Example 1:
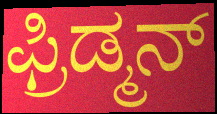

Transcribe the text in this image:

ಫ್ರಿಡ್ಮನ್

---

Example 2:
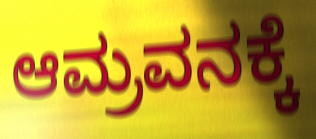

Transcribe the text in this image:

ಆಮ್ರವನಕ್ಕೆ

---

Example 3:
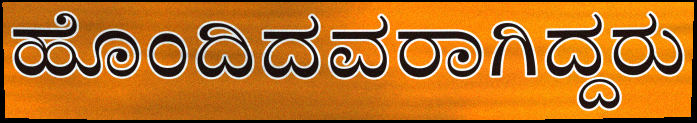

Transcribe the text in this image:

ಹೊಂದಿದವರಾಗಿದ್ದರು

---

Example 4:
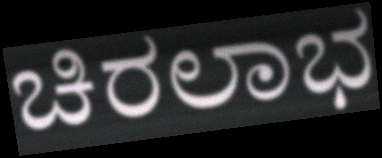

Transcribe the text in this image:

ಚಿರಲಾಭ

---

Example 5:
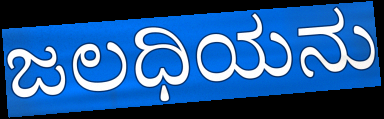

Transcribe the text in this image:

ಜಲಧಿಯನು